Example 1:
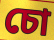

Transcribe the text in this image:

চো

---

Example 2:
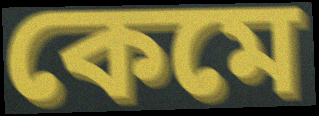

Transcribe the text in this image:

কেমে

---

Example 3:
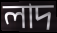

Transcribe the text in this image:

লাদ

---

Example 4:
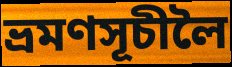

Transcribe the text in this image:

ভ্ৰমণসূচীলৈ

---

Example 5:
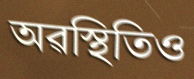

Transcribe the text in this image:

অৱস্থিতিও